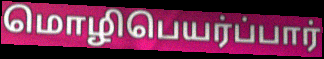
மொழிபெயர்ப்பார்